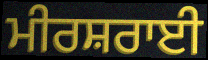
ਮੀਰਸ਼ਰਾਈ